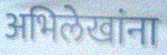
अभिलेखांना